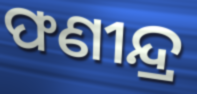
ଫଣୀନ୍ଦ୍ର